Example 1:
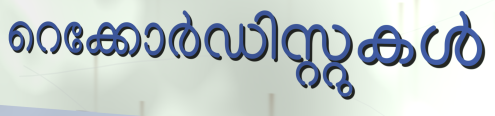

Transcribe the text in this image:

റെക്കോർഡിസ്റ്റുകൾ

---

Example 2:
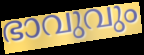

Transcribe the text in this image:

ഭാവുവും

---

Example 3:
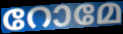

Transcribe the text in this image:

റോമേ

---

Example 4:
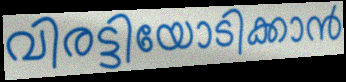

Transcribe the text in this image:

വിരട്ടിയോടിക്കാൻ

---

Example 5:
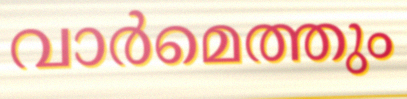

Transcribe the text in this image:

വാർമെത്തും